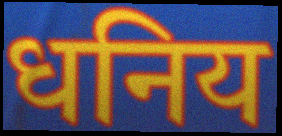
धनिय